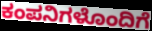
ಕಂಪನಿಗಳೊಂದಿಗೆ